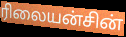
ரிலையன்சின்